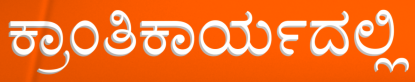
ಕ್ರಾಂತಿಕಾರ್ಯದಲ್ಲಿ